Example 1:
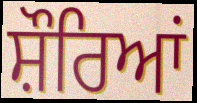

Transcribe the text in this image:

ਸ਼ੌਰਿਆਂ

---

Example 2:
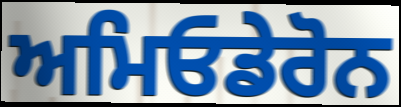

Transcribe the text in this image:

ਅਮਿਓਡੇਰੋਨ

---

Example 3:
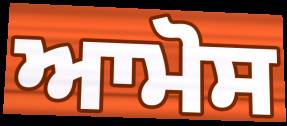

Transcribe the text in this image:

ਆਮੋਸ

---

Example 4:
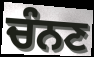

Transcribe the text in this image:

ਚੰਨਣ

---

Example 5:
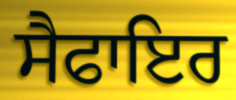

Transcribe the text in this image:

ਸੈਫਾਇਰ